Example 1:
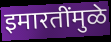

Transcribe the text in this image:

इमारतींमुळे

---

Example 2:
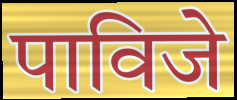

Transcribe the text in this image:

पाविजे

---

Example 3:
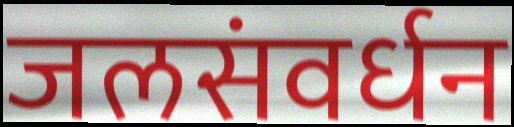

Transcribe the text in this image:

जलसंवर्धन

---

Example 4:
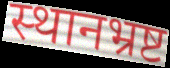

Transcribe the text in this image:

स्थानभ्रष्ट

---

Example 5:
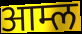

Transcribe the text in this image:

आम्ल